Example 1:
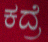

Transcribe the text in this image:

ಕದ್ರೆ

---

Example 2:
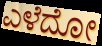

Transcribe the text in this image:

ಎಳೆದೋ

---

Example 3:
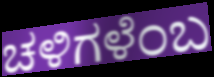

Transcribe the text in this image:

ಚಳಿಗಳೆಂಬ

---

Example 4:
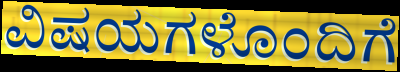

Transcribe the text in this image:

ವಿಷಯಗಳೊಂದಿಗೆ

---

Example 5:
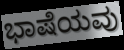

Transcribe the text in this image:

ಭಾಷೆಯವು